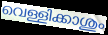
വെള്ളിക്കാശും